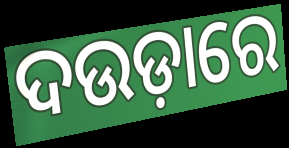
ଦଉଡ଼ାରେ